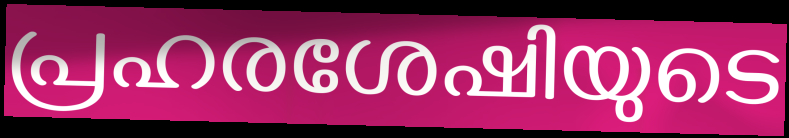
പ്രഹരശേഷിയുടെ